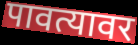
पावत्यावर